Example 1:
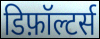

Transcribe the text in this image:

डिफ़ॉल्टर्स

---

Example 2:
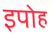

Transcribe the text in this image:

इपोह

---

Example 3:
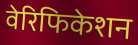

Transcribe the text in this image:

वेरिफिकेशन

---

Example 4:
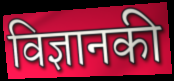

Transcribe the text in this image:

विज्ञानकी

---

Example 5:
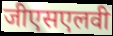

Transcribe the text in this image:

जीएसएलवी